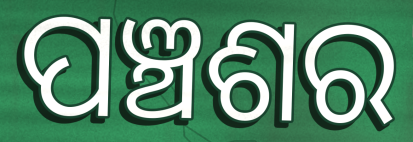
ପଞ୍ଚଶର